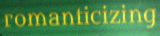
romanticizing